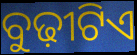
ବୁଢ଼ୀଟିଏ